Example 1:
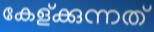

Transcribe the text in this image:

കേള്ക്കുന്നത്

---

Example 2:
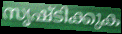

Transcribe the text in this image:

സൃഷ്ടിക്കുക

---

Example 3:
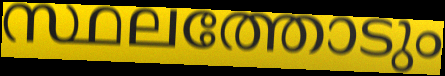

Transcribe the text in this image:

സ്ഥലത്തോടും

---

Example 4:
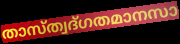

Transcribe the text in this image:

താസ്ത്വദ്ഗതമാനസാ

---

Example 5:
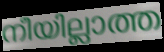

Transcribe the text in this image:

നീയില്ലാത്ത